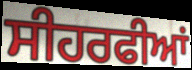
ਸੀਹਰਫੀਆਂ